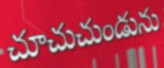
చూచుచుండును